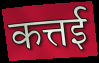
कत्तई